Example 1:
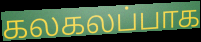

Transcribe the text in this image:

கலகலப்பாக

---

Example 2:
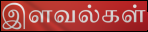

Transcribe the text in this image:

இளவல்கள்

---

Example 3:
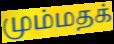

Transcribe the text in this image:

மும்மதக்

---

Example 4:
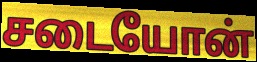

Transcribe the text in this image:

சடையோன்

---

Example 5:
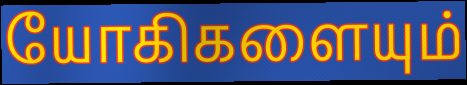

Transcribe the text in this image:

யோகிகளையும்